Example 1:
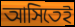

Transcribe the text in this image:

আসিতেই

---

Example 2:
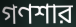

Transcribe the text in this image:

গণশার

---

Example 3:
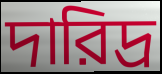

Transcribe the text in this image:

দারিদ্র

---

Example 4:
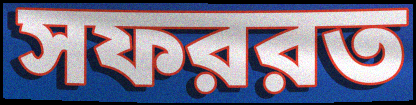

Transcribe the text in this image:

সফররত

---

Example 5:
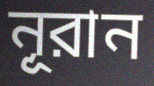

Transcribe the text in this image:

নূরান